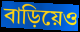
বাড়িয়েও